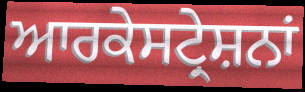
ਆਰਕੇਸਟ੍ਰੇਸ਼ਨਾਂ